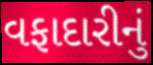
વફાદારીનું